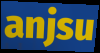
anjsu